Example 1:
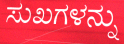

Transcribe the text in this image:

ಸುಖಗಳನ್ನು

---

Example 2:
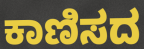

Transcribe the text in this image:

ಕಾಣಿಸದ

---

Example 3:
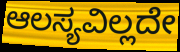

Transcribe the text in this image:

ಆಲಸ್ಯವಿಲ್ಲದೇ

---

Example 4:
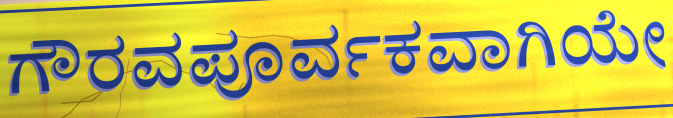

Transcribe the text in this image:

ಗೌರವಪೂರ್ವಕವಾಗಿಯೇ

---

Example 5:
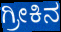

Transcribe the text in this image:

ಗ್ರೀಕಿನ